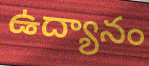
ఉద్యానం